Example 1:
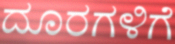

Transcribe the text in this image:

ದೂರಗಳಿಗೆ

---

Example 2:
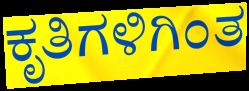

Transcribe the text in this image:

ಕೃತಿಗಳಿಗಿಂತ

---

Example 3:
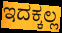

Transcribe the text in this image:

ಇದಕ್ಕಲ್ಲ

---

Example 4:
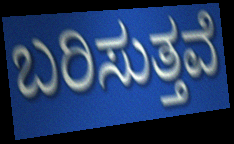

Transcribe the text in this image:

ಬರಿಸುತ್ತವೆ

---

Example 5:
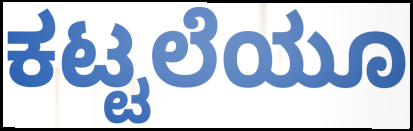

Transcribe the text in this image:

ಕಟ್ಟಲೆಯೂ